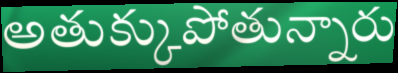
అతుక్కుపోతున్నారు